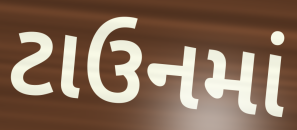
ટાઉનમાં